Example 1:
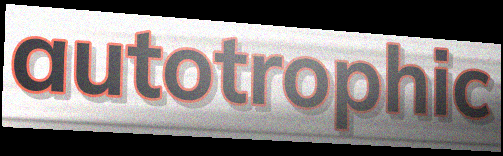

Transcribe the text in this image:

autotrophic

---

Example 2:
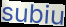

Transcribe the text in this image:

subiu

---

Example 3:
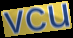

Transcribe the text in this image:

vcu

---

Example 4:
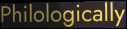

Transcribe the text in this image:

Philologically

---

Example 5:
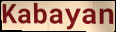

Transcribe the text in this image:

Kabayan